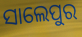
ସାଲେପୁର